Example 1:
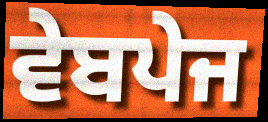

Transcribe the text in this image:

ਵੇਬਪੇਜ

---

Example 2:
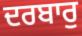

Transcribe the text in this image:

ਦਰਬਾਰੁ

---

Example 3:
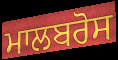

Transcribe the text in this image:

ਮਾਲਬਰੋਸ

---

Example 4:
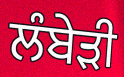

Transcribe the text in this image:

ਲੰਬੇੜੀ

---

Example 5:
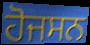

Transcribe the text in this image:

ਹੋਜਸਨ